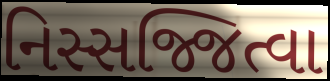
નિસ્સજ્જિત્વા